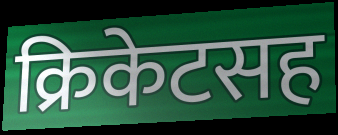
क्रिकेटसह